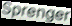
Sprenger